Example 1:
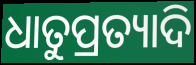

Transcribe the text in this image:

ଧାତୁପ୍ରତ୍ୟାଦି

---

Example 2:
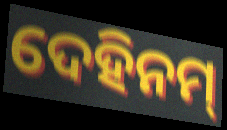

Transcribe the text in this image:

ଦେହିନମ୍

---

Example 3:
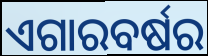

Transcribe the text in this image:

ଏଗାରବର୍ଷର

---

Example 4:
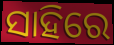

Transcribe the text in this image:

ସାହିରେ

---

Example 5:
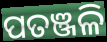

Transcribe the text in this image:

ପତଞ୍ଜଳି